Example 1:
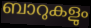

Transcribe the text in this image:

ബാറുകളും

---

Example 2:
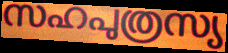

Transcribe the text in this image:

സഹപുത്രസ്യ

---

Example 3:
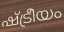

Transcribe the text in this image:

ഷ്ട്രീയം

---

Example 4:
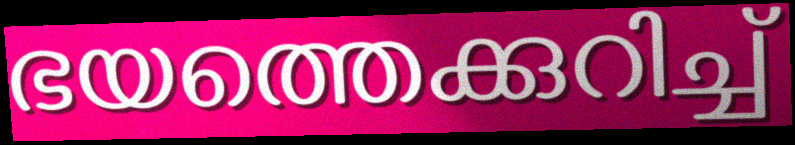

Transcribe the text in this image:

ഭയത്തെക്കുറിച്ച്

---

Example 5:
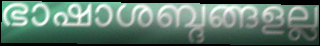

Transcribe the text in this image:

ഭാഷാശബ്ദങ്ങളല്ല